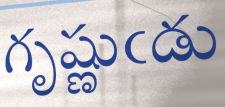
గృష్ణుఁడు